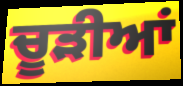
ਚੂੜੀਆਂ